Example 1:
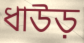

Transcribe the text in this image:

ধাউড়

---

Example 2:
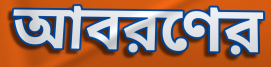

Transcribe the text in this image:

আবরণের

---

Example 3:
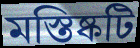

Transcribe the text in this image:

মস্তিষ্কটি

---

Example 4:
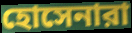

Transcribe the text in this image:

হোসেনারা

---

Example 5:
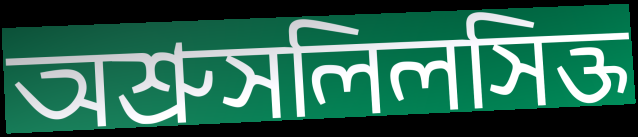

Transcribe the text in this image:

অশ্রুসলিলসিক্ত